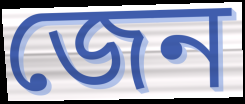
জেন